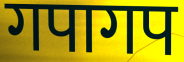
गपागप